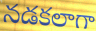
నడకలాగా